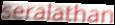
seralathan